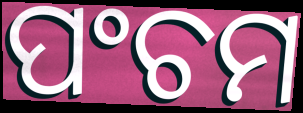
ପଂଚମ